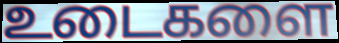
உடைகளை